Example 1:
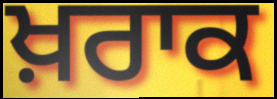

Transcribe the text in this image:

ਖ਼ਰਾਕ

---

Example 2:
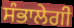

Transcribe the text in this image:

ਸੰਭਾਲੇਗੀ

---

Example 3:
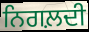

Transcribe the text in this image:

ਨਿਗਲ਼ਦੀ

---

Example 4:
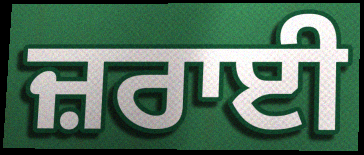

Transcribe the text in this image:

ਜ਼ਰਾਈ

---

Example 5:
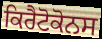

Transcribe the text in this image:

ਕਿਰੈਟੋਕੋਨਸ